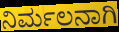
ನಿರ್ಮಲನಾಗಿ